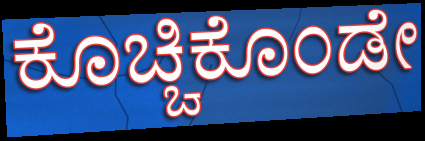
ಕೊಚ್ಚಿಕೊಂಡೇ